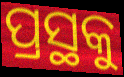
ପ୍ରସ୍ଥକୁ